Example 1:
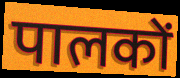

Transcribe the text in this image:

पालकों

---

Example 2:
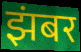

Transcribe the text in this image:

झंबर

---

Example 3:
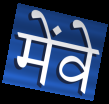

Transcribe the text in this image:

मेंवे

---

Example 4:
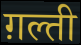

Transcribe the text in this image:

ग़ल्ती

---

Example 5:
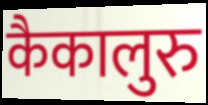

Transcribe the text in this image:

कैकालुरु